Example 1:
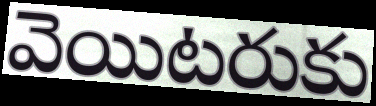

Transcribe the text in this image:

వెయిటరుకు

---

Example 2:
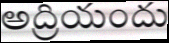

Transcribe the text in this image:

అద్రియందు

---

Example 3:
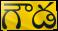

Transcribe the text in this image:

గౌడ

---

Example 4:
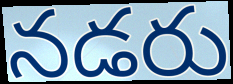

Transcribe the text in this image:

నడరు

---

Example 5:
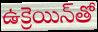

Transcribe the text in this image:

ఉక్రెయిన్‌తో